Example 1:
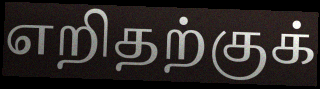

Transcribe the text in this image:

எறிதற்குக்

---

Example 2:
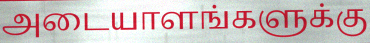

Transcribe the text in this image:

அடையாளங்களுக்கு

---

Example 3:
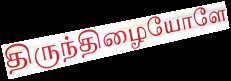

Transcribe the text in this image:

திருந்திழையோளே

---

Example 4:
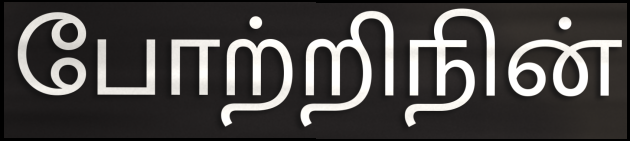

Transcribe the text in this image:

போற்றிநின்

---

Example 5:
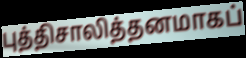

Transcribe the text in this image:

புத்திசாலித்தனமாகப்